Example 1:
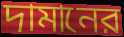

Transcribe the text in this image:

দামানের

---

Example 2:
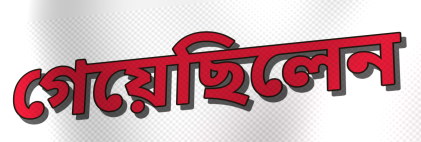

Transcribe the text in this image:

গেয়েছিলেন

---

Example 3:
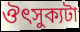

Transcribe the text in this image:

ঔৎসুক্যটা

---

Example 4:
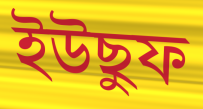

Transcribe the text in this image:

ইউছুফ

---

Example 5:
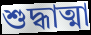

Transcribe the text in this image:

শুদ্ধাত্মা